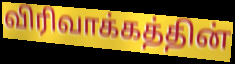
விரிவாக்கத்தின்